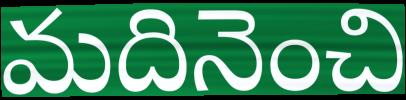
మదినెంచి